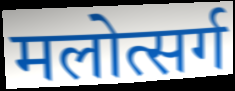
मलोत्सर्ग